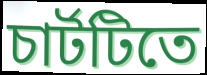
চার্টটিতে